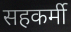
सहकर्मी